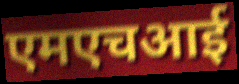
एमएचआई